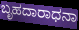
ಬೃಹದಾರಾಧನಾ